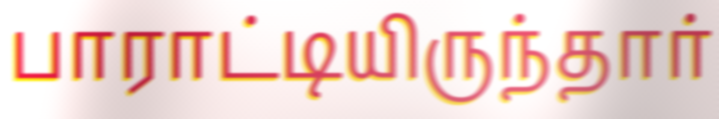
பாராட்டியிருந்தார்